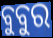
ବୁବୁର